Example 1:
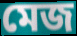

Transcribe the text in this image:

মেজ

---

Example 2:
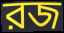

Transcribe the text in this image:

রজ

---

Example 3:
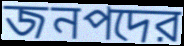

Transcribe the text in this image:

জনপদের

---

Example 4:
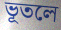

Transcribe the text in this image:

ভূতলে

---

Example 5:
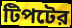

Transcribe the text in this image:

টিপটের